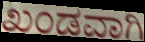
ಖಂಡವಾಗಿ